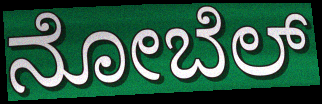
ನೋಬೆಲ್